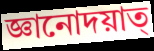
জ্ঞানোদয়াত্